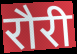
रौरी